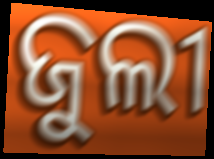
ଜୁଲୀ